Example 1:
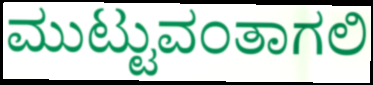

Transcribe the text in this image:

ಮುಟ್ಟುವಂತಾಗಲಿ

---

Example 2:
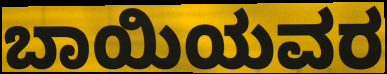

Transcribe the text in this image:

ಬಾಯಿಯವರ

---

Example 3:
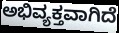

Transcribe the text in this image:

ಅಭಿವ್ಯಕ್ತವಾಗಿದೆ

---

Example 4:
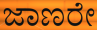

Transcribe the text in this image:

ಜಾಣರೇ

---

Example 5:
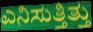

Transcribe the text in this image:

ಎನಿಸುತ್ತಿತ್ತು